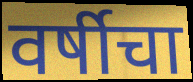
वर्षीचा